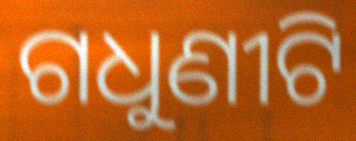
ଗଧୁଣୀଟି